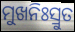
ମୁଖନିଃସ୍ରୁତ